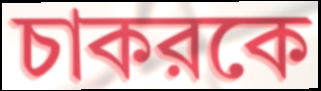
চাকরকে